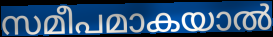
സമീപമാകയാൽ